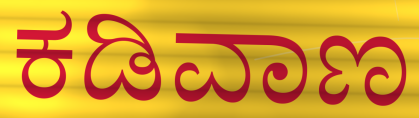
ಕಡಿವಾಣ